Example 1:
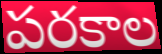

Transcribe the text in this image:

పరకాల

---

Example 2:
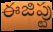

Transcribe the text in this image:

ఈజిప్టు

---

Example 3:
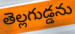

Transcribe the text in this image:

తెల్లగుడ్డను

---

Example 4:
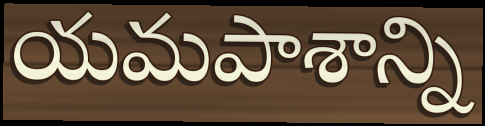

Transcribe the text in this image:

యమపాశాన్ని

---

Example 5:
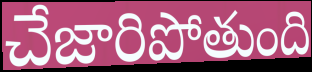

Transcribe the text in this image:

చేజారిపోతుంది